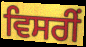
ਵਿਸਰੀਂ